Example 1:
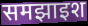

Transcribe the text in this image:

समझाइश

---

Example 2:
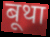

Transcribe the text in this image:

बूथा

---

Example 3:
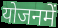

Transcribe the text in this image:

योजनमें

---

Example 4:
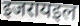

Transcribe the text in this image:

इजरायइल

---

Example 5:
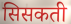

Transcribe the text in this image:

सिसकती